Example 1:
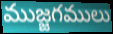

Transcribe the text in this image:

ముజ్జగములు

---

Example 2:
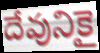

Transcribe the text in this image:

దేవునికై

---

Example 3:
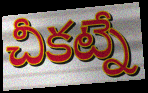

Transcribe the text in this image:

చీకట్నే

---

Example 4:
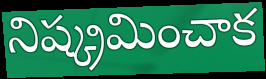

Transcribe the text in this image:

నిష్క్రమించాక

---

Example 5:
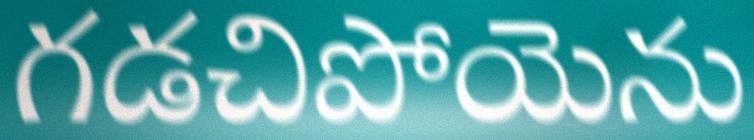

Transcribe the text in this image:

గడచిపోయెను